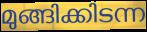
മുങ്ങിക്കിടന്ന